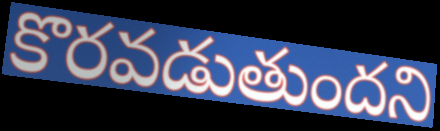
కొరవడుతుందని